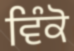
ਵਿੰਕੋ